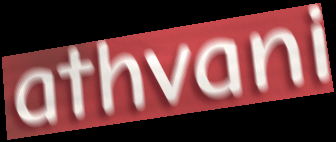
athvani